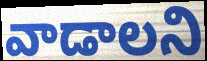
వాడాలని